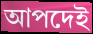
আপদেই